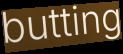
butting